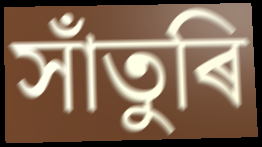
সাঁতুৰি